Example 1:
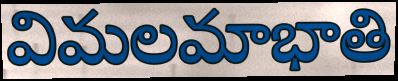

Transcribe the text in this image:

విమలమాభాతి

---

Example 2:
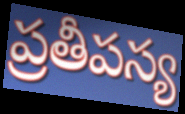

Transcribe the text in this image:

ప్రతీపస్య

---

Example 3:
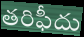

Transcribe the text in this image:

తరిఫీదు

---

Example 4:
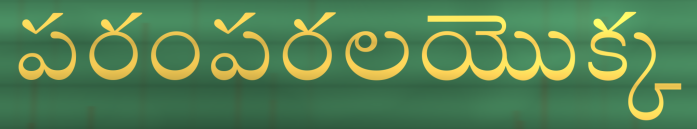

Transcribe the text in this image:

పరంపరలయొక్క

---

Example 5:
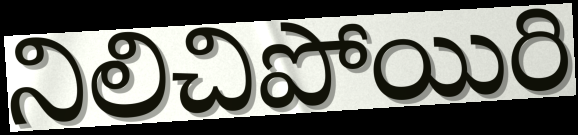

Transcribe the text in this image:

నిలిచిపోయిరి